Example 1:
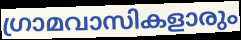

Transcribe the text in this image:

ഗ്രാമവാസികളാരും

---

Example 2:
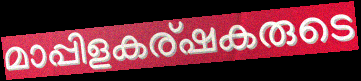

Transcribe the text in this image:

മാപ്പിളകര്ഷകരുടെ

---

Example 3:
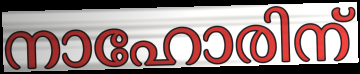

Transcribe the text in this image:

നാഹോരിന്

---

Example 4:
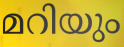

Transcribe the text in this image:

മറിയും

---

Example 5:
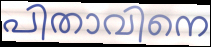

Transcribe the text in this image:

പിതാവിനെ